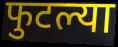
फुटल्या